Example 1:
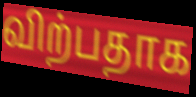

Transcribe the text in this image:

விற்பதாக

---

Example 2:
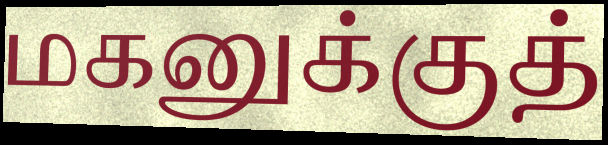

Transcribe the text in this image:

மகனுக்குத்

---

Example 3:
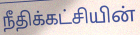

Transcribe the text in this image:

நீதிக்கட்சியின்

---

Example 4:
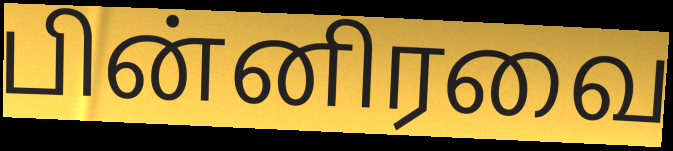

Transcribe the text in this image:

பின்னிரவை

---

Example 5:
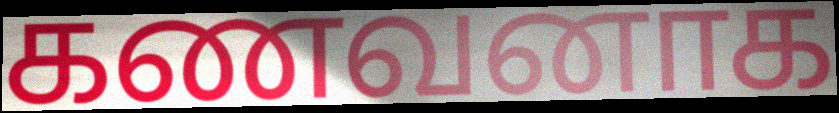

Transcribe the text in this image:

கணவனாக